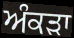
ਅੰਕੜਾ